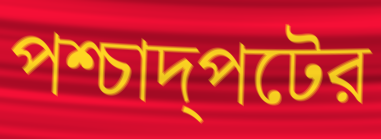
পশ্চাদ্পটের